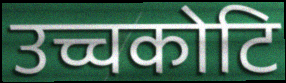
उच्चकोटि